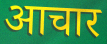
आचार